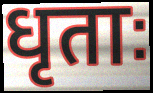
धृताः